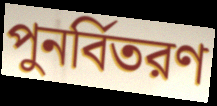
পুনর্বিতরণ